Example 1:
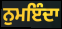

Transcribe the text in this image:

ਨੁਮਇੰਦਾ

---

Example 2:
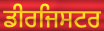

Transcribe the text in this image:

ਡੀਰਜਿਸਟਰ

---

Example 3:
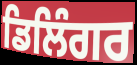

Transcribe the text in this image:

ਡਿਲਿੰਗਰ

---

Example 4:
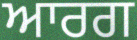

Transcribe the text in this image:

ਆਰਗ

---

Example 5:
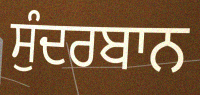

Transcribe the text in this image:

ਸੁੰਦਰਬਾਨ